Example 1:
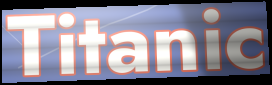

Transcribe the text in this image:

Titanic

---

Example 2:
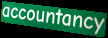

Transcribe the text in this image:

accountancy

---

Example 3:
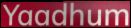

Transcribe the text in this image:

Yaadhum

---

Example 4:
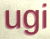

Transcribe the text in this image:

ugi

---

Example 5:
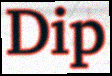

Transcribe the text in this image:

Dip